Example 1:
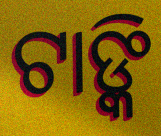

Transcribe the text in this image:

ଟାଙ୍କି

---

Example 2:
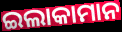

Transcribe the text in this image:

ଇଲାକାମାନ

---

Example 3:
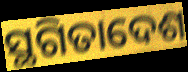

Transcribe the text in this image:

ସ୍ଥଗିତାଦେଶ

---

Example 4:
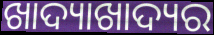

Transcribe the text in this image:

ଖାଦ୍ୟାଖାଦ୍ୟର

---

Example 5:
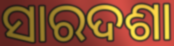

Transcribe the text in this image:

ସାରଦଶା